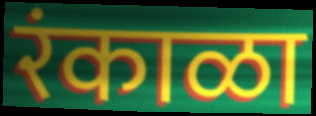
रंकाळा